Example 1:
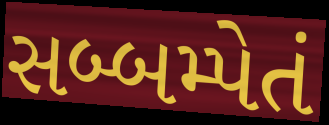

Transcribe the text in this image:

સબ્બમ્પેતં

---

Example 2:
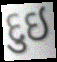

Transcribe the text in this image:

દુઇ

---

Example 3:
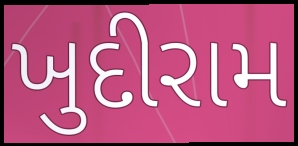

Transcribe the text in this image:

ખુદીરામ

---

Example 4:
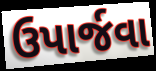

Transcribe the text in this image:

ઉપાર્જવા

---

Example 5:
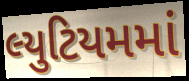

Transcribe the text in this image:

લ્યુટિયમમાં